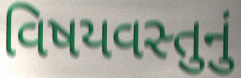
વિષયવસ્તુનું